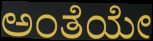
ಅಂತೆಯೇ